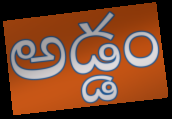
అడ్డం